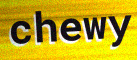
chewy